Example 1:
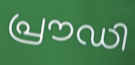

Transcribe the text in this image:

പ്രൗഡി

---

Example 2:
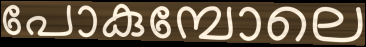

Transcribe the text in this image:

പോകുമ്പോലെ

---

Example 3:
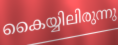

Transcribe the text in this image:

കൈയ്യിലിരുന്നു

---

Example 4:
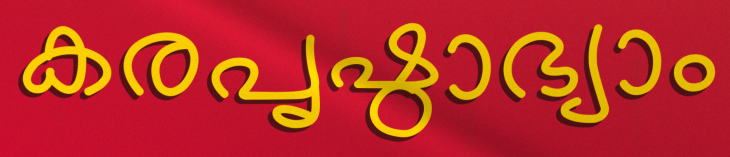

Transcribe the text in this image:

കരപൃഷ്ഠാഭ്യാം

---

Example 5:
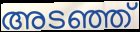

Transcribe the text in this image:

അടഞ്ഞ്